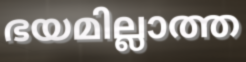
ഭയമില്ലാത്ത